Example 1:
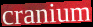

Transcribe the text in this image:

cranium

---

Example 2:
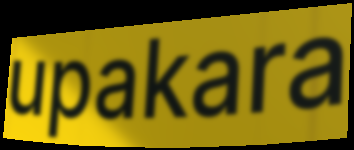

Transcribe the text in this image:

upakara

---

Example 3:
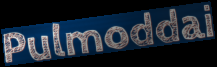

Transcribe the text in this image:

Pulmoddai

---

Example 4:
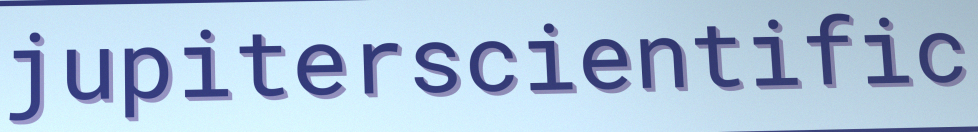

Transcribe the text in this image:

jupiterscientific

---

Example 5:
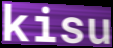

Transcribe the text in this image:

kisu